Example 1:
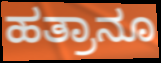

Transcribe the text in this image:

ಹತ್ರಾನೂ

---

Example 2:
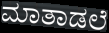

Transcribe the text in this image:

ಮಾತಾಡಲೆ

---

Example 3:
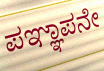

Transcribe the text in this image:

ಪಞ್ಞಾಪನೇ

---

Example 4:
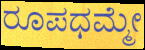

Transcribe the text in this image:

ರೂಪಧಮ್ಮೇ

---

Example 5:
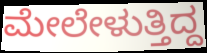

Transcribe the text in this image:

ಮೇಲೇಳುತ್ತಿದ್ದ